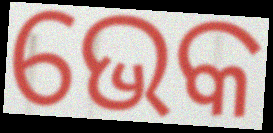
ଭେକ